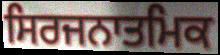
ਸਿਰਜਨਾਤਮਿਕ